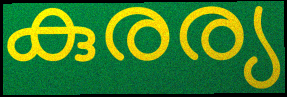
കുരര്യ